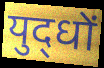
युद्धों